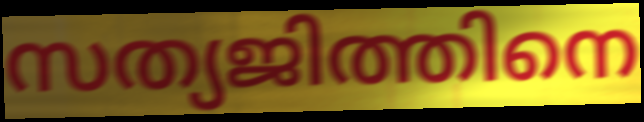
സത്യജിത്തിനെ